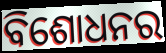
ବିଶୋଧନର